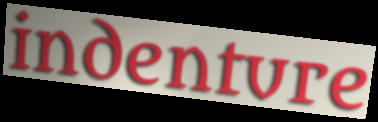
indenture